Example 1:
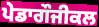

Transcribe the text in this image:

ਪੇਡਾਗੌਜੀਕਲ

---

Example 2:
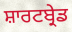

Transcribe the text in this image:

ਸ਼ਾਰਟਬ੍ਰੇਡ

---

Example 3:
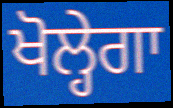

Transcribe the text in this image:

ਖੋਲ੍ਹੇਗਾ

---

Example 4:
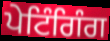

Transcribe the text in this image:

ਪੇਟਿੰਗਿੰਗ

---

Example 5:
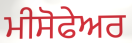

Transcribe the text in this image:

ਮੀਸੋਫੇਅਰ